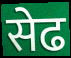
सेढ